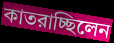
কাতরাচ্ছিলেন